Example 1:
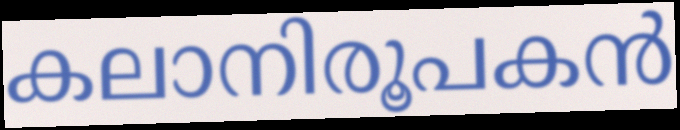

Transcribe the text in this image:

കലാനിരൂപകൻ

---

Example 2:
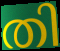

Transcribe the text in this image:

തി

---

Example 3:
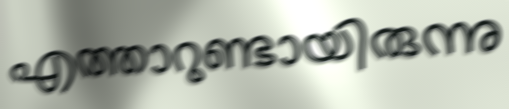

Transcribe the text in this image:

എത്താറുണ്ടായിരുന്നു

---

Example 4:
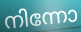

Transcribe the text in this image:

നിന്നോ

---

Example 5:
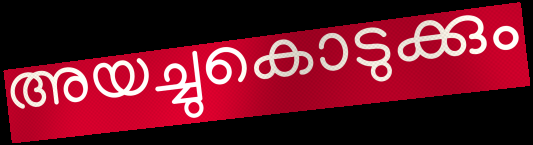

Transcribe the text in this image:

അയച്ചുകൊടുക്കും